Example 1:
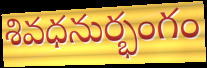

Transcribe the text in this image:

శివధనుర్భంగం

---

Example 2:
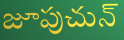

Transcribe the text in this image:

జూపుచున్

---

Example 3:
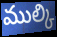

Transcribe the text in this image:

ముల్కి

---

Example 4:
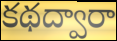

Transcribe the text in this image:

కథద్వారా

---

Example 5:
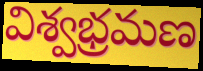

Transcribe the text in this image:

విశ్వభ్రమణ